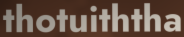
thotuiththa